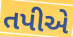
તપીએ